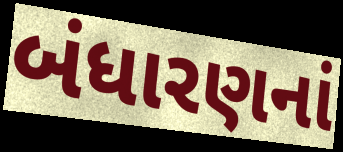
બંધારણનાં